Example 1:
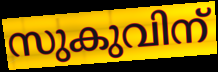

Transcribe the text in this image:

സുകുവിന്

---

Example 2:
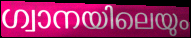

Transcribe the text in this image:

ഗ്വാനയിലെയും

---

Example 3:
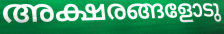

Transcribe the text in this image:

അക്ഷരങ്ങളോടു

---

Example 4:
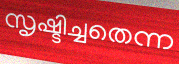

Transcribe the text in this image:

സൃഷ്ടിച്ചതെന്ന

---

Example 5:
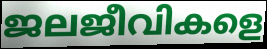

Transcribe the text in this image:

ജലജീവികളെ